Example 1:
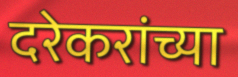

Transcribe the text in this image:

दरेकरांच्या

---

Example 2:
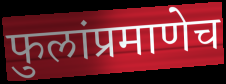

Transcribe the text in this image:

फुलांप्रमाणेच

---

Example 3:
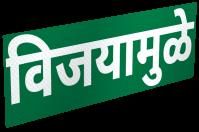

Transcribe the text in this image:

विजयामुळे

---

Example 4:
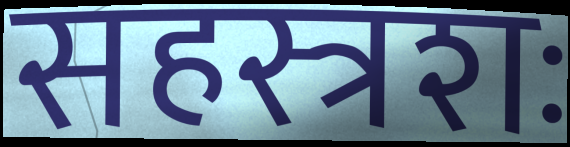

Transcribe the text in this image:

सहस्त्रशः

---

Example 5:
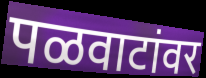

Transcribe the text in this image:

पळवाटांवर